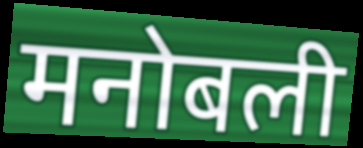
मनोबली